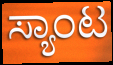
ಸ್ಯಾಂಟ